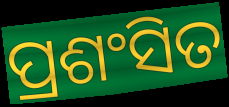
ପ୍ରଶଂସିତ